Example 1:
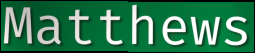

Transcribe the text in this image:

Matthews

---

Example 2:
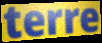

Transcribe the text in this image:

terre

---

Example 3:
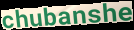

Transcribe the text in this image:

chubanshe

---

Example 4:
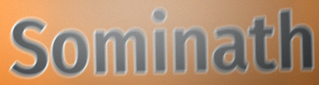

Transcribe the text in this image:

Sominath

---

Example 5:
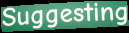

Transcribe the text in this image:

Suggesting